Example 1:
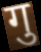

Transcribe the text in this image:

गु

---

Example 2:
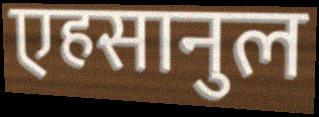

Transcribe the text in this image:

एहसानुल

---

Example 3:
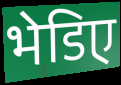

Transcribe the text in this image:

भेडिए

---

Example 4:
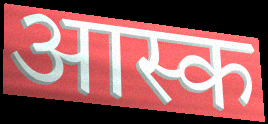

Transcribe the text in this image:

आस्क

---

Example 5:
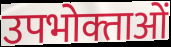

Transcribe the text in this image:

उपभोक्‍ताओं